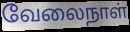
வேலைநாள்